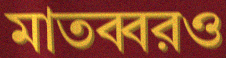
মাতব্বরও